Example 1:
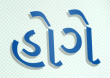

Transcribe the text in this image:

હોગે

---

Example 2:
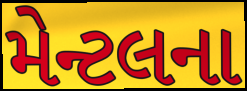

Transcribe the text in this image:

મેન્ટલના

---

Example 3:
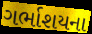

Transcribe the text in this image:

ગર્ભાશયના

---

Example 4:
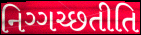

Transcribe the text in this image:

નિગ્ગચ્છતીતિ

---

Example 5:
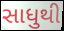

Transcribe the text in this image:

સાધુથી